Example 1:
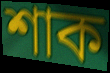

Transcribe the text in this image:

শাক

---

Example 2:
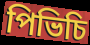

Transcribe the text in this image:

পিভিচি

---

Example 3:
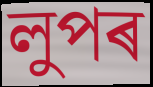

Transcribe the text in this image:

লুপৰ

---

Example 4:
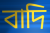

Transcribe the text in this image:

বাদি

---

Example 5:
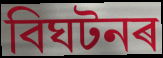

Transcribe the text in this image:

বিঘটনৰ